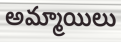
అమ్మాయిలు